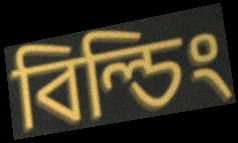
বিল্ডিং